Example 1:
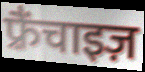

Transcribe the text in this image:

फ़्रैंचाइज़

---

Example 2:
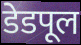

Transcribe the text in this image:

डेडपूल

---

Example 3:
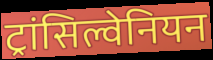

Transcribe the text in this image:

ट्रांसिल्वेनियन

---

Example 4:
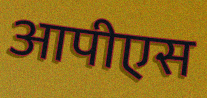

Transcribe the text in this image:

आपीएस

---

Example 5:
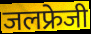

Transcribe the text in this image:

जलफ्रेजी